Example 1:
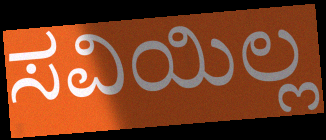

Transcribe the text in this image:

ಸವಿಯಿಲ್ಲ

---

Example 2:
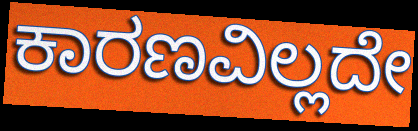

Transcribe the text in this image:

ಕಾರಣವಿಲ್ಲದೇ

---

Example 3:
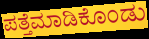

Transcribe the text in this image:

ಪತ್ತೆಮಾಡಿಕೊಂಡು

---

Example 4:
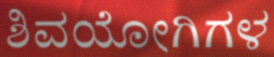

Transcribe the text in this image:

ಶಿವಯೋಗಿಗಳ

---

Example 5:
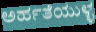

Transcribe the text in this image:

ಅರ್ಹತೆಯುಳ್ಳ